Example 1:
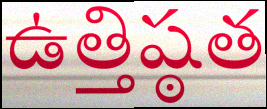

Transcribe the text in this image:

ఉత్తిష్ఠత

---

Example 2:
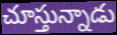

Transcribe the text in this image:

చూస్తున్నాడు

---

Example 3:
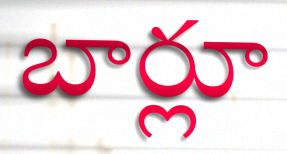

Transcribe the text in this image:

బార్లూ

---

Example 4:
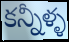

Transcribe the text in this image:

కన్నీళ్ళ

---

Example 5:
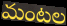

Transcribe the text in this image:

మంటల